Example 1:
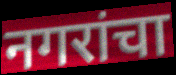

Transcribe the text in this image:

नगरांचा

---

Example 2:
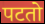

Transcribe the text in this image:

पटतो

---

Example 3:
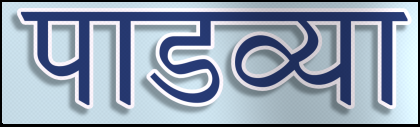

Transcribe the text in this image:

पाडव्या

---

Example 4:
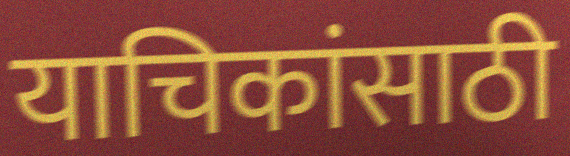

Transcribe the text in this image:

याचिकांसाठी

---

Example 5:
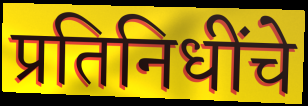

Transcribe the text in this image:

प्रतिनिधींचे